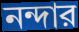
নন্দার